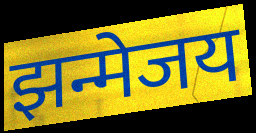
झन्मेजय